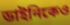
ডাইনিকেও